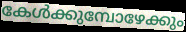
കേൾക്കുമ്പോഴേക്കും